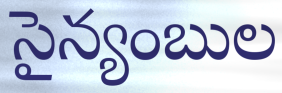
సైన్యంబుల